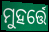
ମୁହର୍ତ୍ତେ